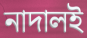
নাদালই